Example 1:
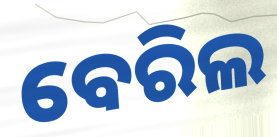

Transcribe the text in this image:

ବେରିଲ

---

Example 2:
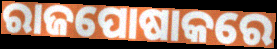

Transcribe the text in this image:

ରାଜପୋଷାକରେ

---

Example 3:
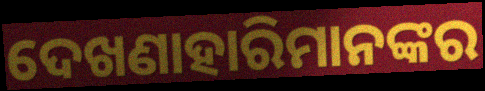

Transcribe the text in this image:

ଦେଖଣାହାରିମାନଙ୍କର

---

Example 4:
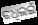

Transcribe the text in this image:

ବଧିଲଇଁ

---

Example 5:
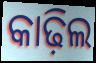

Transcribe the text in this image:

କାଢ଼ିଲ